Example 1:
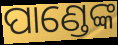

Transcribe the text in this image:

ପାଣ୍ଡେଙ୍କ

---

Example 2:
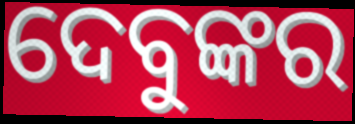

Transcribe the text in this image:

ଦେବୁଙ୍କର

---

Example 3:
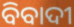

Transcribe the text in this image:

ବିବାଦୀ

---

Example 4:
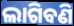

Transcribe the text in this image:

ଲାଗିବଣି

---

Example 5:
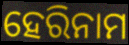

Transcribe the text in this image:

ହେରିନାମ